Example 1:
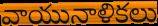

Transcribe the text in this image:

వాయునాళికలు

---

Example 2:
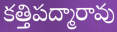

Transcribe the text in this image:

కత్తిపద్మారావు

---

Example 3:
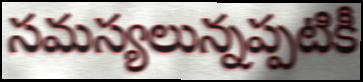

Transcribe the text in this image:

సమస్యలున్నప్పటికీ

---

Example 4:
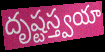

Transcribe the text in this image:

దృష్టస్త్వయా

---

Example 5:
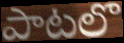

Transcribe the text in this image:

పాటలొ